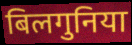
बिलगुनिया